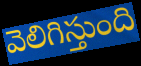
వెలిగిస్తుంది